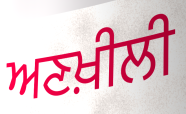
ਅਣਖ਼ੀਲੀ